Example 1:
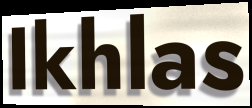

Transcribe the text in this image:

Ikhlas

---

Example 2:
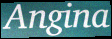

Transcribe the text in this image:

Angina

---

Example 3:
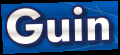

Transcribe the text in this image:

Guin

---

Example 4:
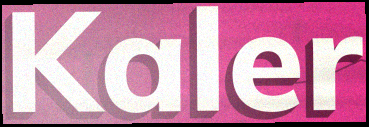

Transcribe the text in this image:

Kaler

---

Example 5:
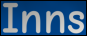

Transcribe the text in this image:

Inns